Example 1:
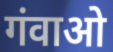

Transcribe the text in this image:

गंवाओ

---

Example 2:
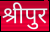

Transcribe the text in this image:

श्रीपुर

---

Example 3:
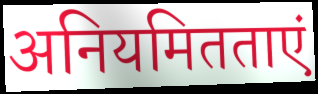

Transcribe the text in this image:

अनियमितताएं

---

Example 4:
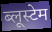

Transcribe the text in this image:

ब्लूस्टेम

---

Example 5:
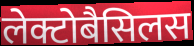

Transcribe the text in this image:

लेक्टोबैसिलस